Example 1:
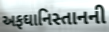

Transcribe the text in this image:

અફઘાનિસ્તાનની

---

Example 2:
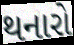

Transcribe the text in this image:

થનારો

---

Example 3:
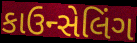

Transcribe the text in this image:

કાઉન્સેલિંગ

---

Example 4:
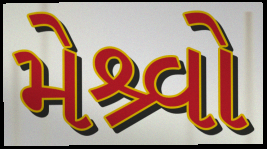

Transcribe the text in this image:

મેશ્ર્વો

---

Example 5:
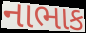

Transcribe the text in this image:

નાભાક